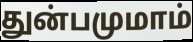
துன்பமுமாம்